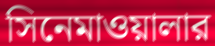
সিনেমাওয়ালার